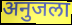
अनुजला